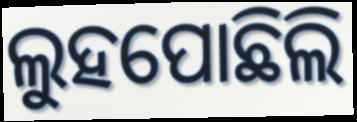
ଲୁହପୋଛିଲି